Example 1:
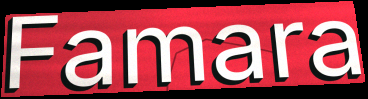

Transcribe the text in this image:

Famara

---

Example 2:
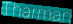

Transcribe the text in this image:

Tharman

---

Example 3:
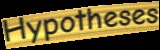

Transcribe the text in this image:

Hypotheses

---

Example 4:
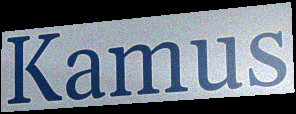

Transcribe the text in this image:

Kamus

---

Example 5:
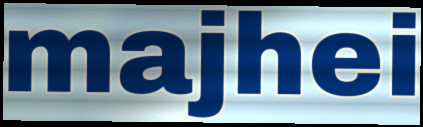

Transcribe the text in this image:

majhei